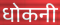
धोकनी